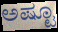
ಅಷ್ಟೂ